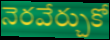
నెరవేర్చుకో